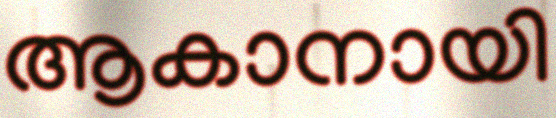
ആകാനായി